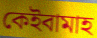
কেইবামাহ